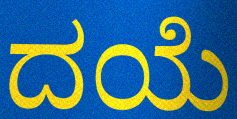
ದಯೆ